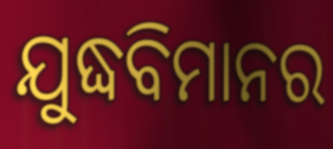
ଯୁଦ୍ଧବିମାନର